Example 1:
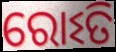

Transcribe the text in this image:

ରୋଽତି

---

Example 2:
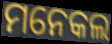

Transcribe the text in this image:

ମନେକଲ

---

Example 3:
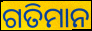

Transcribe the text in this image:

ଗତିମାନ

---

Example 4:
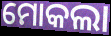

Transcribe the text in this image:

ମୋକଲା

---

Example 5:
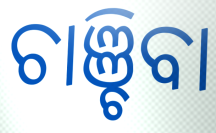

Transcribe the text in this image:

ଚାଞ୍ଚିବା